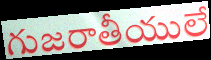
గుజరాతీయులే